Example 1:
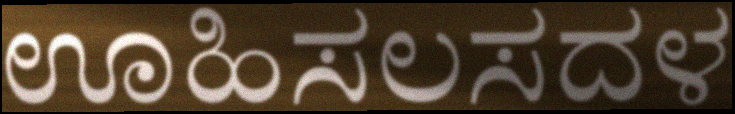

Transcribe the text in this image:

ಊಹಿಸಲಸದಳ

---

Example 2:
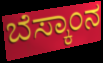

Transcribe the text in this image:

ಬೆಸ್ಕಾಂನ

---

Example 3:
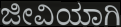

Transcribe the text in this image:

ಜೀವಿಯಾಗಿ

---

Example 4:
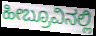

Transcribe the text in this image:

ಹೀಬ್ರೂವಿನಲ್ಲಿ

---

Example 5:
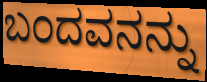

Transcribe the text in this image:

ಬಂದವನನ್ನು